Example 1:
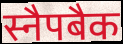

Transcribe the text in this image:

स्नैपबैक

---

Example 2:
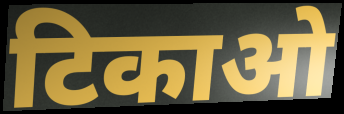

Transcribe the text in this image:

टिकाओ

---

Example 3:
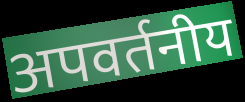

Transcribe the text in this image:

अपवर्तनीय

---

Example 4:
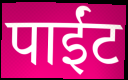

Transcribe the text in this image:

पाईंट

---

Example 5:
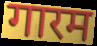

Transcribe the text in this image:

गारम